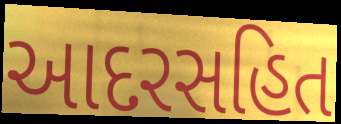
આદરસહિત